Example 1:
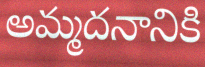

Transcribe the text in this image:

అమ్మదనానికి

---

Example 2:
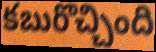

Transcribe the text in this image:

కబురొచ్చింది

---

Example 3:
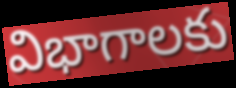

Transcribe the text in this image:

విభాగాలకు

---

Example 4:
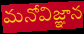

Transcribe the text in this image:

మనోవిజ్ఞాన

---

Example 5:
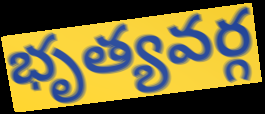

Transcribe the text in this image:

భృత్యవర్గ